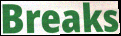
Breaks